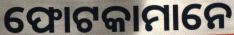
ଫୋଟକାମାନେ